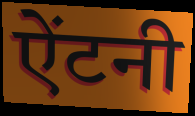
ऐंटनी